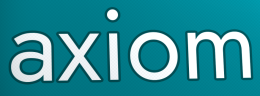
axiom